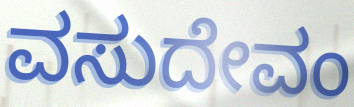
ವಸುದೇವಂ